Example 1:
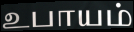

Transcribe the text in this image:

உபாயம்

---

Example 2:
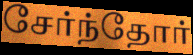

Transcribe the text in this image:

சேர்ந்தோர்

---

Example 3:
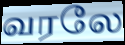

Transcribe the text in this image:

வரலே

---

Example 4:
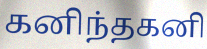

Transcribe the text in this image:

கனிந்தகனி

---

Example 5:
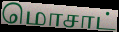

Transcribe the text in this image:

மொசாட்